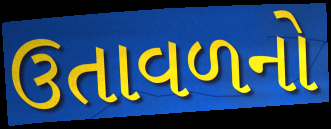
ઉતાવળનો